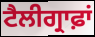
ਟੈਲੀਗ੍ਰਾਫ਼ਾਂ